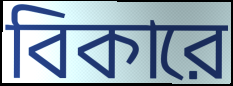
বিকারে